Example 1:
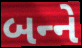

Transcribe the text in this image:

બન્‍ને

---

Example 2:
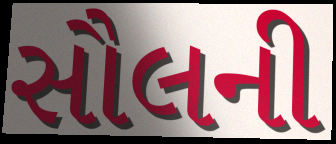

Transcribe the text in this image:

સૌલની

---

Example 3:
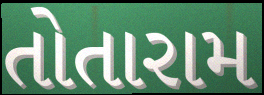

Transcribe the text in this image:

તોતારામ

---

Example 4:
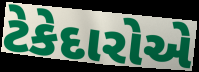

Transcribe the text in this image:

ટેકેદારોએ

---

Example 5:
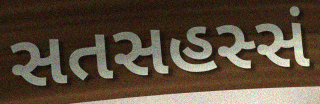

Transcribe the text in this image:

સતસહસ્સં